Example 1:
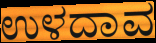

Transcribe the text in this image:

ಉಳದಾವ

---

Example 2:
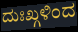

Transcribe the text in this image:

ದುಃಖ್ಗಳಿಂದ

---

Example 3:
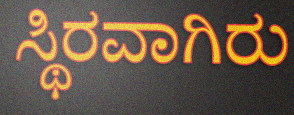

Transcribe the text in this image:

ಸ್ಥಿರವಾಗಿರು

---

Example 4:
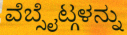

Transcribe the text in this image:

ವೆಬ್ಸೈಟ್ಗಳನ್ನು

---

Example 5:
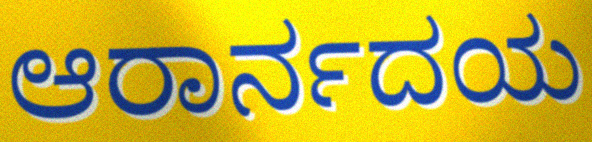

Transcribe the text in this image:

ಆರಾರ್ನದಯ